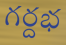
గర్దభ